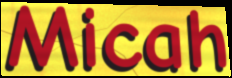
Micah